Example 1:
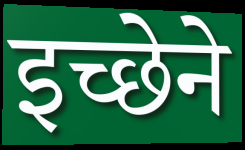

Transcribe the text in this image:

इच्छेने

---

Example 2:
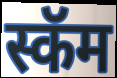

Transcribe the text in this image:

स्कॅम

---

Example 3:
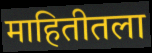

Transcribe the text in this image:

माहितीतला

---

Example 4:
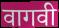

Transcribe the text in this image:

वागवी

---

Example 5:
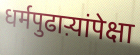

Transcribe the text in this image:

धर्मपुढाऱ्‍यांपेक्षा